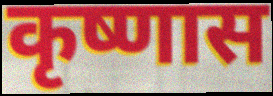
कृष्णास